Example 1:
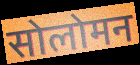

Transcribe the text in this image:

सोलोमन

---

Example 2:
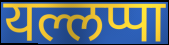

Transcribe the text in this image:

यल्लप्पा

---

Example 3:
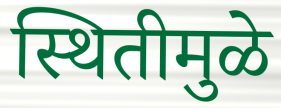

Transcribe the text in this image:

स्थितीमुळे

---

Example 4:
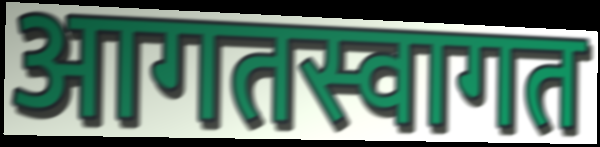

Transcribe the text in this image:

आगतस्वागत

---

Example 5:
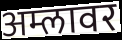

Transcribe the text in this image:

अम्लावर